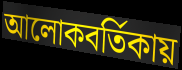
আলোকবর্তিকায়